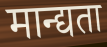
मान्द्यता